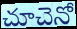
చూచెనో